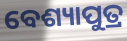
ବେଶ୍ୟାପୁତ୍ର